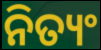
ନିତ୍ୟଂ